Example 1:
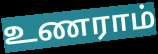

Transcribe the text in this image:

உணராம்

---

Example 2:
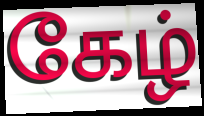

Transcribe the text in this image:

கேழ்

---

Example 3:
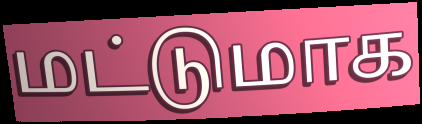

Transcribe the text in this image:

மட்டுமாக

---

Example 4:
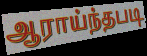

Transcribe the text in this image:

ஆராய்ந்தபடி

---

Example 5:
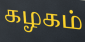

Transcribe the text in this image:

கழகம்